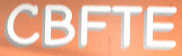
CBFTE